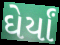
ઘેર્યાં